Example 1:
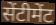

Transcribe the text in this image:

सेंटीमेंट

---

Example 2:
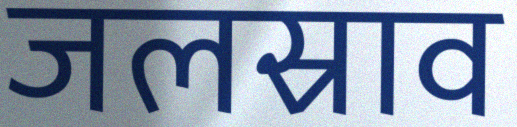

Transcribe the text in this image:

जलस्राव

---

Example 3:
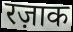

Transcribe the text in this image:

रज़ाक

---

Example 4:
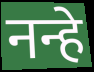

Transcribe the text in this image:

नन्हे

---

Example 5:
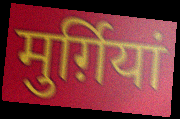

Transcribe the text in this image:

मुर्ग़ियां